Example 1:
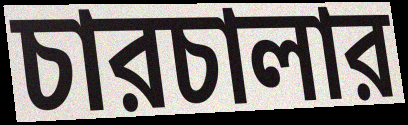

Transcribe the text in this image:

চারচালার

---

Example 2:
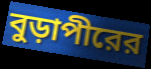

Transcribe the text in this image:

বুড়াপীরের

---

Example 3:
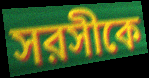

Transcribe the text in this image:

সরসীকে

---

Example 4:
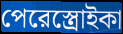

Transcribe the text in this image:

পেরেস্ত্রোইকা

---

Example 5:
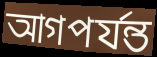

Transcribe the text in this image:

আগপর্যন্ত